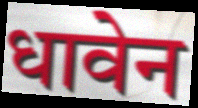
धावेन